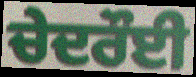
ਚੇਦਰੌਈ